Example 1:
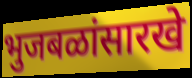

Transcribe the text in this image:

भुजबळांसारखे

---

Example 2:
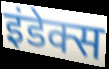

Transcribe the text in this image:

इंडेक्स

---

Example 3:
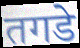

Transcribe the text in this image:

तगडे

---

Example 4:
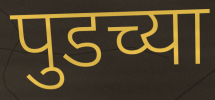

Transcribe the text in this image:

पुडच्या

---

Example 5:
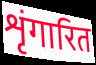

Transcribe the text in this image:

शृंगारित